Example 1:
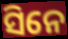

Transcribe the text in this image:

ସିନେ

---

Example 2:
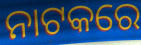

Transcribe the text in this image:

ନାଟକରେ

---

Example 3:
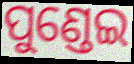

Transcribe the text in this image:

ପୁଣ୍ଡେଇ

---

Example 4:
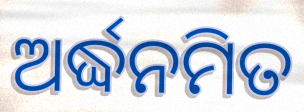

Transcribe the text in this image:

ଅର୍ଦ୍ଧନମିତ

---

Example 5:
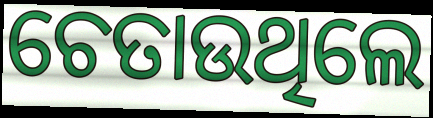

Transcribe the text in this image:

ଚେତାଉଥିଲେ